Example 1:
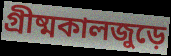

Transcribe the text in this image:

গ্রীষ্মকালজুড়ে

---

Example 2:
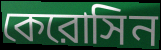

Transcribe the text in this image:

কেরোসিন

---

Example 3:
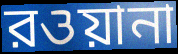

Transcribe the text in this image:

রওয়ানা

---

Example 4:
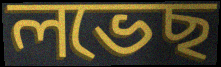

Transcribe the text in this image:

লভেছ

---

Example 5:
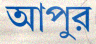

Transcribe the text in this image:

আপুর